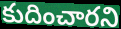
కుదించారని